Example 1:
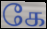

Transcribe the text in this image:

கே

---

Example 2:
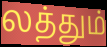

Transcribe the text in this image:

லத்தும்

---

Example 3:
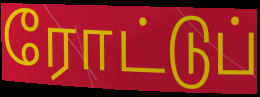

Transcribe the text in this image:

ரோட்டுப்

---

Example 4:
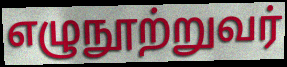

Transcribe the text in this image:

எழுநூற்றுவர்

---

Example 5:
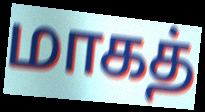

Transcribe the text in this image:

மாகத்